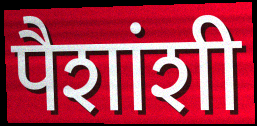
पैशांशी